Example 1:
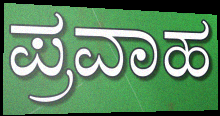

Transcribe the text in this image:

ಪ್ರವಾಹ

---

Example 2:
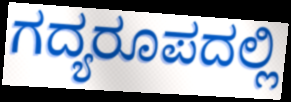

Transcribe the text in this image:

ಗದ್ಯರೂಪದಲ್ಲಿ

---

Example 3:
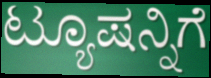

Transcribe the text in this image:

ಟ್ಯೂಷನ್ನಿಗೆ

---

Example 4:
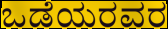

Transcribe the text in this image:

ಒಡೆಯರವರ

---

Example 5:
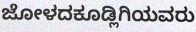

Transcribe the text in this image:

ಜೋಳದಕೂಡ್ಲಿಗಿಯವರು